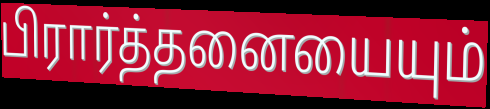
பிரார்த்தனையையும்